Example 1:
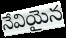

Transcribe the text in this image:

నేవియైన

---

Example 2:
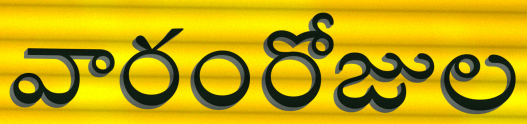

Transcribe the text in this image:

వారంరోజుల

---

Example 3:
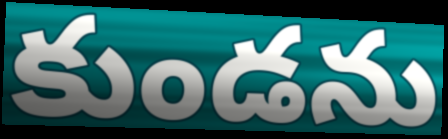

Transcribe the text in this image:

కుండను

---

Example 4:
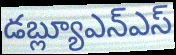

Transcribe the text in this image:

డబ్ల్యూఎన్ఎస్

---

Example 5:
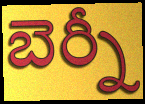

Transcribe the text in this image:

బెర్నీ